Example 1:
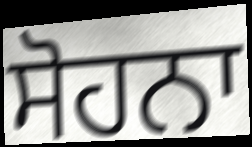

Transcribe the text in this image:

ਸੋਹਨਾ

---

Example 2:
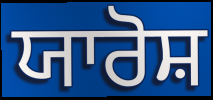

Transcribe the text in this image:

ਯਾਰੋਸ਼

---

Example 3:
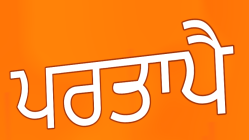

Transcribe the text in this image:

ਪਰਤਾਪੈ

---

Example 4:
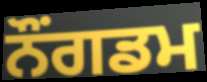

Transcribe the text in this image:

ਨੌਂਗਡਮ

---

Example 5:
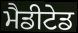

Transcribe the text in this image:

ਮੈਡੀਟੇਡ